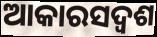
ଆକାରସଦ୍ୱଶ